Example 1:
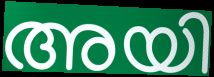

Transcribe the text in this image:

അയി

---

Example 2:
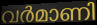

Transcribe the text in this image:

വർമാണി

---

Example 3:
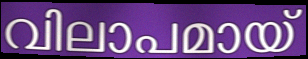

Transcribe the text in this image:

വിലാപമായ്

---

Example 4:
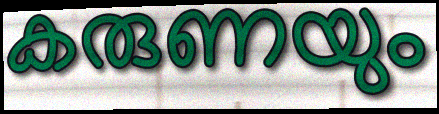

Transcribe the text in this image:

കരുണയും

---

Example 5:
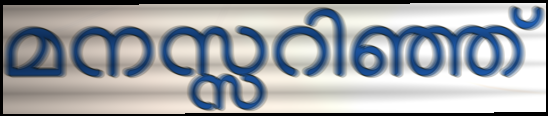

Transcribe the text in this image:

മനസ്സറിഞ്ഞ്